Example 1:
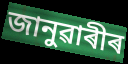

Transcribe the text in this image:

জানুৱাৰীৰ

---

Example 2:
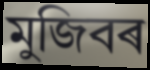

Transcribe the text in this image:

মুজিবৰ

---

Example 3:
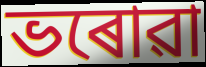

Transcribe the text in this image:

ভৰোৱা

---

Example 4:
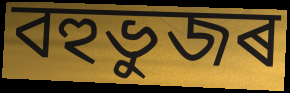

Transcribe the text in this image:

বহুভুজৰ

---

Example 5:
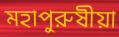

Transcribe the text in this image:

মহাপুৰুষীয়া